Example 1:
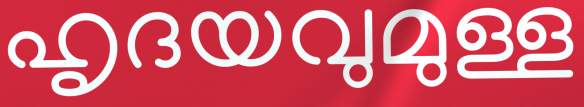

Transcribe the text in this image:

ഹൃദയവുമുള്ള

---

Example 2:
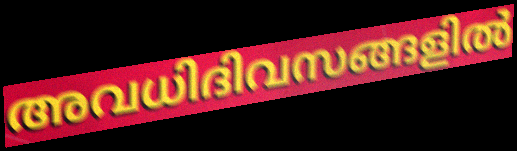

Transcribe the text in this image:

അവധിദിവസങ്ങളിൽ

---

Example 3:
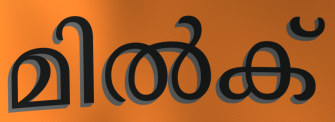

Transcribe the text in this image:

മിൽക്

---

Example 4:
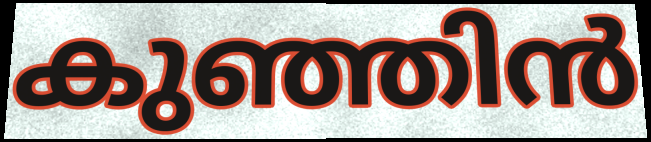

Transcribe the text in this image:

കുഞ്ഞിൻ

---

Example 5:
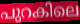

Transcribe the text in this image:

പുറകിലെ